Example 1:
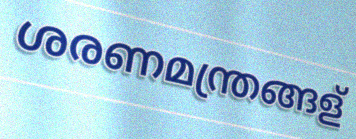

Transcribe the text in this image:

ശരണമന്ത്രങ്ങള്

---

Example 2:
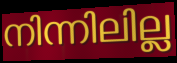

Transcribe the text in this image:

നിന്നിലില്ല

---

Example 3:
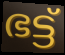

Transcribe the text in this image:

ഭട്ട്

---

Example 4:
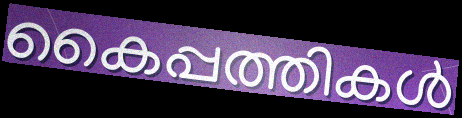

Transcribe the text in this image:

കൈപ്പത്തികൾ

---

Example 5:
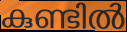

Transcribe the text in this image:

കുണ്ടിൽ